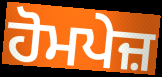
ਹੋਮਪੇਜ਼